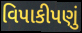
વિપાકીપણું